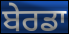
ਬੇਰਡਾ